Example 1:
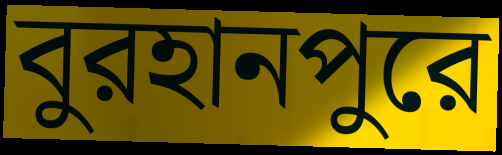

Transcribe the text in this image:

বুরহানপুরে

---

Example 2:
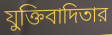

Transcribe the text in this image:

যুক্তিবাদিতার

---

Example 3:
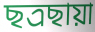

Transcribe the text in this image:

ছত্রছায়া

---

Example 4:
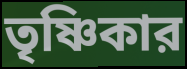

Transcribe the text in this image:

তৃষ্ণিকার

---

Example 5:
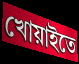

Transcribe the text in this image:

খোয়াইতে